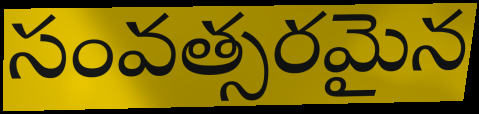
సంవత్సరమైన